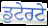
ਡੁਟੇਰਟੇ